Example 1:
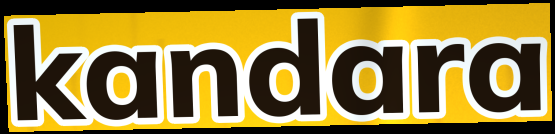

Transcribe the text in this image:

kandara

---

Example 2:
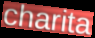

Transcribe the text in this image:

charita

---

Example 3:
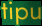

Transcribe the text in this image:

tipu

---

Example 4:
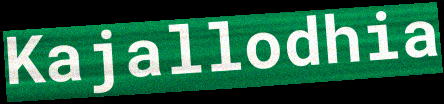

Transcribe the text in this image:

Kajallodhia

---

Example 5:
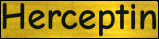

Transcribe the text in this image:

Herceptin